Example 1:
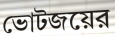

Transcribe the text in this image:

ভোটজয়ের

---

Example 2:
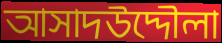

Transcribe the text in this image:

আসাদউদ্দৌলা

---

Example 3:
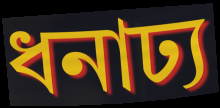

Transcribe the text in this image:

ধনাঢ্য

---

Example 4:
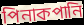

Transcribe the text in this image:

পিনাকপানি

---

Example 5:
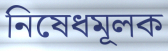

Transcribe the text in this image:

নিষেধমূলক